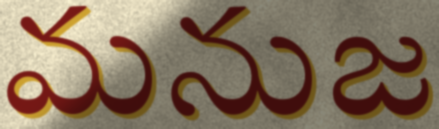
మనుజ